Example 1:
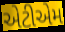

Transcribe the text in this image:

એટીએમ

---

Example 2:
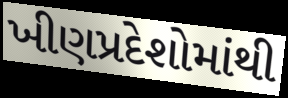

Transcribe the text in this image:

ખીણપ્રદેશોમાંથી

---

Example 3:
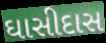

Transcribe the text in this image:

ઘાસીદાસ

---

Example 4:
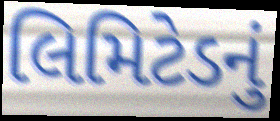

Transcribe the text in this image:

લિમિટેડનું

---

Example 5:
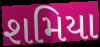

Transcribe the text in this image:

શમિયા